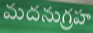
మదనుగ్రహ